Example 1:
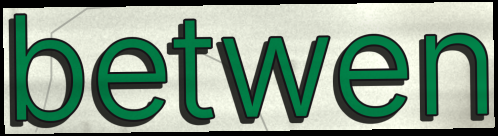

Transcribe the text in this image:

betwen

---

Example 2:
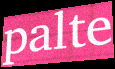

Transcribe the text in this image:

palte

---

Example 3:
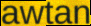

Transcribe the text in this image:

awtan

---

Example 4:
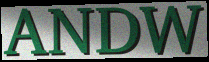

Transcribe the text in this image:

ANDW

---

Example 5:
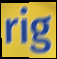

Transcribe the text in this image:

rig